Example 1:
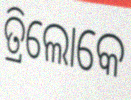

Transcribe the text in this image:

ତ୍ରିଲୋକେ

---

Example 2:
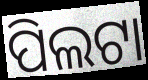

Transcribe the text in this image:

ପିଲଟା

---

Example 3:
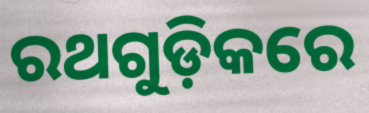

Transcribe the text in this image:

ରଥଗୁଡ଼ିକରେ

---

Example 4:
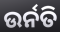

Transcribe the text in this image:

ଉର୍ନତି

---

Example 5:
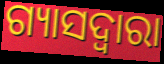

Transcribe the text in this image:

ଗ୍ୟାସଦ୍ଵାରା